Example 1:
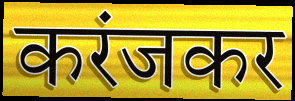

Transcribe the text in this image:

करंजकर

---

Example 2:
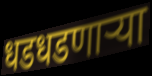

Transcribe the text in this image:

धडधडणाऱ्या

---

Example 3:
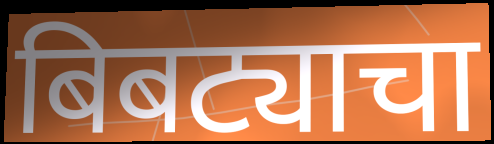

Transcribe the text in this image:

बिबट्याचा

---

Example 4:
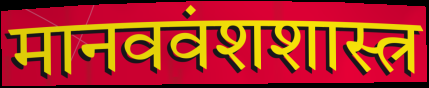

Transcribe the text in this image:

मानववंशशास्त्र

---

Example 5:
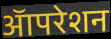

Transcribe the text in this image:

ॲापरेशन